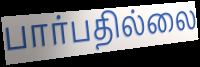
பார்பதில்லை